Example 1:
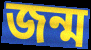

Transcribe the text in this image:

জন্ম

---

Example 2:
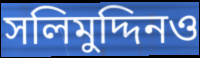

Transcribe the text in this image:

সলিমুদ্দিনও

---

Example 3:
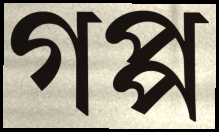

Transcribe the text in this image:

গপ্প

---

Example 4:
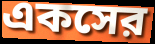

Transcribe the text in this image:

একসের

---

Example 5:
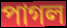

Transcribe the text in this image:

পাগল